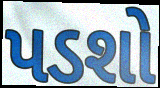
પડશો